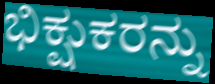
ಭಿಕ್ಷುಕರನ್ನು